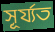
সূৰ্য্যত